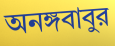
অনঙ্গবাবুর